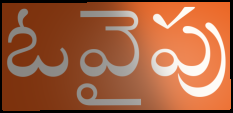
ఓవైపు